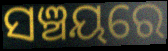
ସଞ୍ଚୟରେ